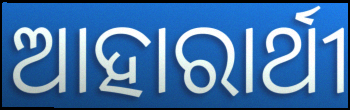
ଆହାରାର୍ଥୀ